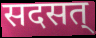
सदसत्